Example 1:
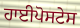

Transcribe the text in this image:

ਹਾਈਪੋਸਟੇਸ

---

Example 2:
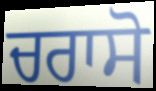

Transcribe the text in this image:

ਚਰਾਸੋ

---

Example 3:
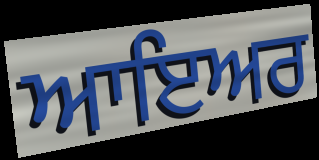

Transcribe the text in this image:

ਆਇਅਰ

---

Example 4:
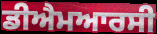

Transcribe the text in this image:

ਡੀਐਮਆਰਸੀ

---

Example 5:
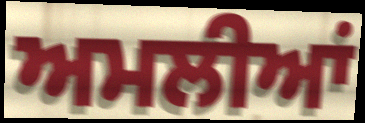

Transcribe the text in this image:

ਅਮਲੀਆਂ